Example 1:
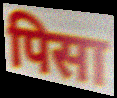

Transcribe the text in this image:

पिसा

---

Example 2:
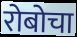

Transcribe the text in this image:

रोबोचा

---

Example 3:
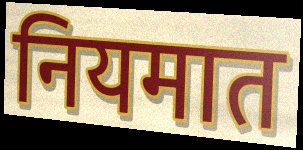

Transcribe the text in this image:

नियमात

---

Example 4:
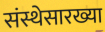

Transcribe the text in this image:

संस्थेसारख्या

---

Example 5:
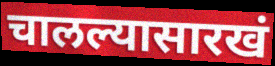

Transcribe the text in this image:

चालल्यासारखं